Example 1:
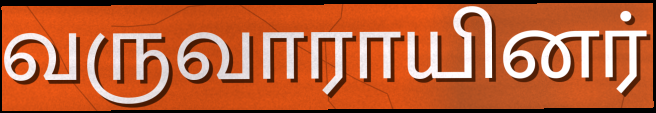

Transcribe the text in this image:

வருவாராயினர்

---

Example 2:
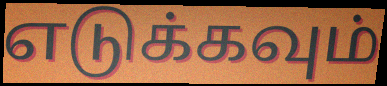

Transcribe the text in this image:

எடுக்கவும்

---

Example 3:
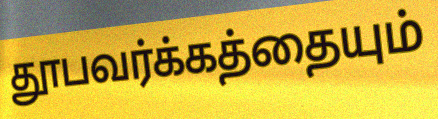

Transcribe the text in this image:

தூபவர்க்கத்தையும்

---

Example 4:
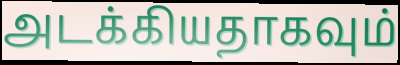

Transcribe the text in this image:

அடக்கியதாகவும்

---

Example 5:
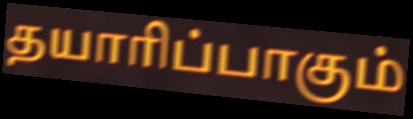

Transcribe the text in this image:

தயாரிப்பாகும்